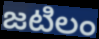
జటిలం